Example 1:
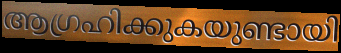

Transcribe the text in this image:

ആഗ്രഹിക്കുകയുണ്ടായി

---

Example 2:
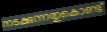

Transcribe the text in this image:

നടക്കുന്നതുകൊണ്ട്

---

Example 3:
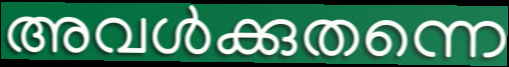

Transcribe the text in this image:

അവൾക്കുതന്നെ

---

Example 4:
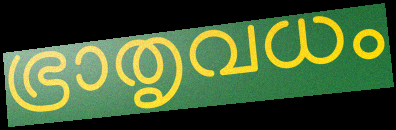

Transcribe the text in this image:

ഭ്രാതൃവധം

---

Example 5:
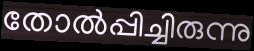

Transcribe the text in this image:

തോൽപ്പിച്ചിരുന്നു